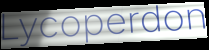
Lycoperdon